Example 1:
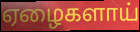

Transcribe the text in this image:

ஏழைகளாய்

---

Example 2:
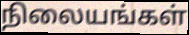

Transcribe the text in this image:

நிலையங்கள்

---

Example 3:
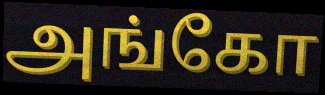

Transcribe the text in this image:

அங்கோ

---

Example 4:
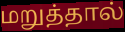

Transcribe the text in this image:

மறுத்தால்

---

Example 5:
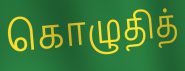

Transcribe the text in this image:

கொழுதித்